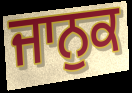
ਜਾਨੁਕ